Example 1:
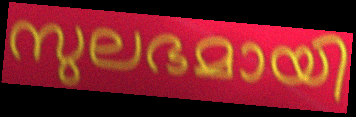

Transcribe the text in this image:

സുലഭമായി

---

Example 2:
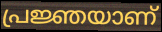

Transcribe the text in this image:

പ്രജ്ഞയാണ്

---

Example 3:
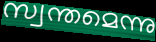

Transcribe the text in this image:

സ്വന്തമെന്നു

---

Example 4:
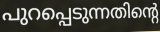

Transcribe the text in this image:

പുറപ്പെടുന്നതിന്റെ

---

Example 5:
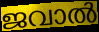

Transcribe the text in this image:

ജവാൽ